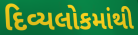
દિવ્યલોકમાંથી